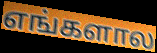
எங்களால